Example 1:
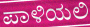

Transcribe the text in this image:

ಪಾಳಿಯಲಿ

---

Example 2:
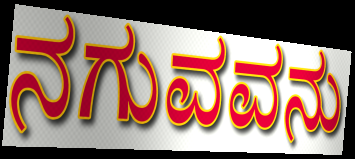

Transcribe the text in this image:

ನಗುವವನು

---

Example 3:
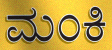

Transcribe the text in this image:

ಮಂಕಿ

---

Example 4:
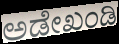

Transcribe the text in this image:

ಅಡೇಖಂಡಿ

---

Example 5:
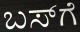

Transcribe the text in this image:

ಬಸ್‍ಗೆ